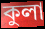
কুলা